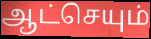
ஆட்செயும்